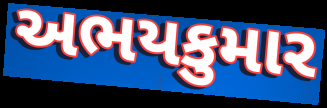
અભયકુમાર